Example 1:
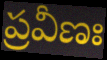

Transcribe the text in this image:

ప్రవీణః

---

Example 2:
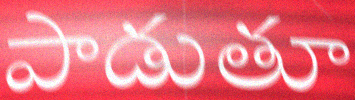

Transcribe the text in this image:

పాడుతూ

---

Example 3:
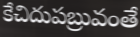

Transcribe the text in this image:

కేచిదుపబ్రువంతే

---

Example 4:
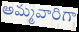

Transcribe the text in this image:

అమ్మవారిగా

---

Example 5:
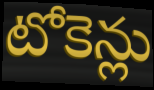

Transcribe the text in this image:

టోకెన్లు